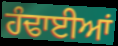
ਹੰਢਾਈਆਂ